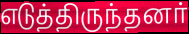
எடுத்திருந்தனர்